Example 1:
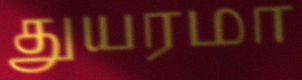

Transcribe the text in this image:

துயரமா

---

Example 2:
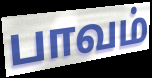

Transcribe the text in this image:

பாவம்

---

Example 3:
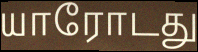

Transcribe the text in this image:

யாரோடது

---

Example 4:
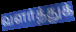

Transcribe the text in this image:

வளர்த்துக்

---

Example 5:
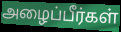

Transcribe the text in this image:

அழைப்பீர்கள்